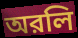
অরলি